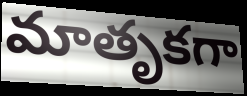
మాతృకగా